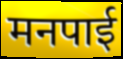
मनपाई